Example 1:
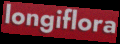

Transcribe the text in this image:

longiflora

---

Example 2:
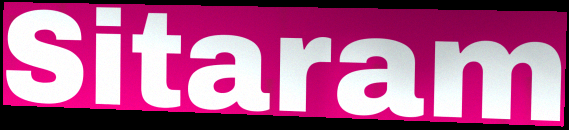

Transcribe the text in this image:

Sitaram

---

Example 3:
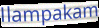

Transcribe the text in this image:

Ilampakam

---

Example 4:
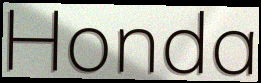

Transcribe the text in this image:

Honda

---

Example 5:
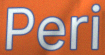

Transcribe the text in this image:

Peri